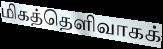
மிகத்தெளிவாகக்